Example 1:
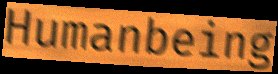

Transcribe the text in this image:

Humanbeing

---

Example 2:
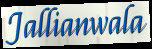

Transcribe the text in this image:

Jallianwala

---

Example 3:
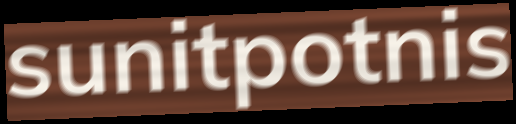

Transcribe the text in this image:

sunitpotnis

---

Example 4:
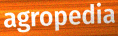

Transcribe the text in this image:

agropedia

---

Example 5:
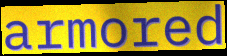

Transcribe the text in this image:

armored